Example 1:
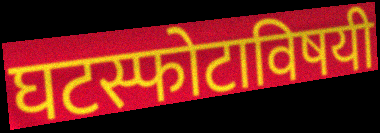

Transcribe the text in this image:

घटस्फोटाविषयी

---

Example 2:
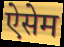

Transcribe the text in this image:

ऐसेम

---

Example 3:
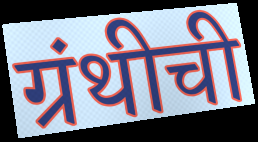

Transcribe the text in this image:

ग्रंथीची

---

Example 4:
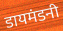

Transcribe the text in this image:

डायमंडनी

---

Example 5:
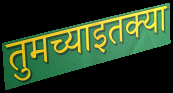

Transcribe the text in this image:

तुमच्याइतक्या